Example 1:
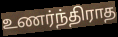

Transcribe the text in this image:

உணர்ந்திராத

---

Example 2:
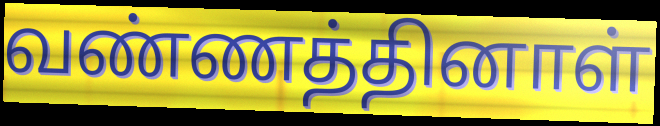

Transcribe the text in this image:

வண்ணத்தினாள்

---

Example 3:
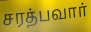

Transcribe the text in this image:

சரத்பவார்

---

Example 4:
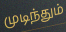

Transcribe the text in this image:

முடிந்தும்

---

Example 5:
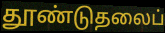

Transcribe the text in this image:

தூண்டுதலைப்